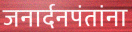
जनार्दनपंतांना